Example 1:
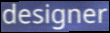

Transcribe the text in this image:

designer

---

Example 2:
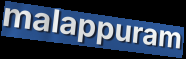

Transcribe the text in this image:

malappuram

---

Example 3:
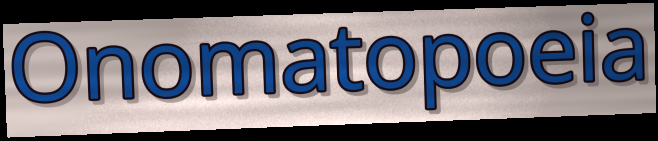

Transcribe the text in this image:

Onomatopoeia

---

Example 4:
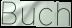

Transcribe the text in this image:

Buch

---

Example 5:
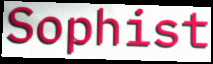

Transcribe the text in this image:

Sophist